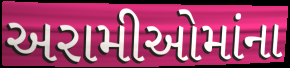
અરામીઓમાંના